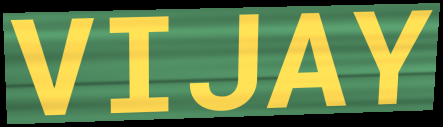
VIJAY